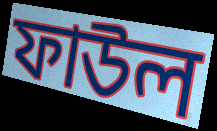
ফাউল